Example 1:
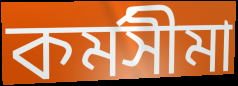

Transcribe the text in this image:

কর্মসীমা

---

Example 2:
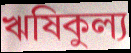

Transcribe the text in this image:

ঋষিকুল্য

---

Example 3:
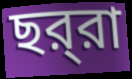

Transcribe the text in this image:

ছর্‌রা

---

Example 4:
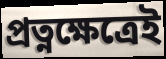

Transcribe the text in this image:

প্রত্নক্ষেত্রেই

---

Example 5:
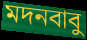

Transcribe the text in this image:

মদনবাবু